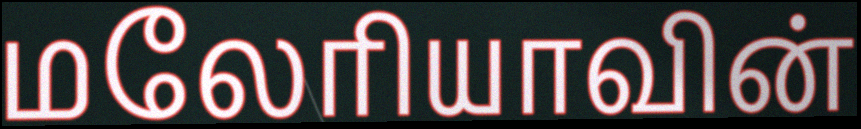
மலேரியாவின்